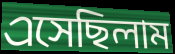
এসেছিলাম